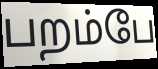
பறம்பே